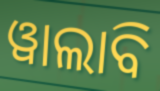
ୱାଲାବି